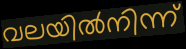
വലയിൽനിന്ന്